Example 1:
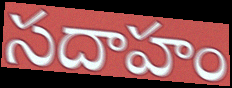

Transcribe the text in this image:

సదాహం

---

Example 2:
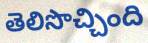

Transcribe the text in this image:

తెలిసొచ్చింది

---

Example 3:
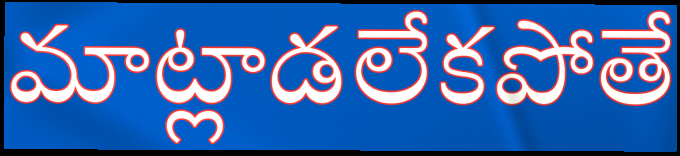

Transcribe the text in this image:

మాట్లాడలేకపోతే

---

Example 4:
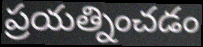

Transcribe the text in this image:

ప్రయత్నించడం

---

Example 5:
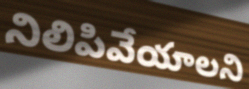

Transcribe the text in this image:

నిలిపివేయాలని